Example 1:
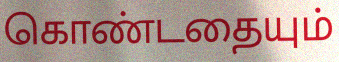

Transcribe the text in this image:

கொண்டதையும்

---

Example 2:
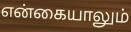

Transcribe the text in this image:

என்கையாலும்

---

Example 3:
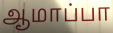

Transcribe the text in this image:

ஆமாப்பா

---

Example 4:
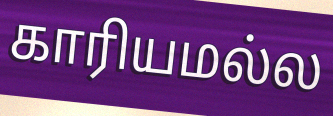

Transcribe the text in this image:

காரியமல்ல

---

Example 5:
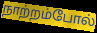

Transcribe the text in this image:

நாற்றம்போல்